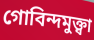
গোবিন্দমুক্ত্বা